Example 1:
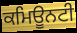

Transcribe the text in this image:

ਕਮਿਊਨਟੀ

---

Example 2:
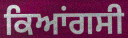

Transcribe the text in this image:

ਕਿਆਂਗਸੀ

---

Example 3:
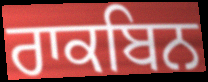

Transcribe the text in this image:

ਰਾਕਬਿਨ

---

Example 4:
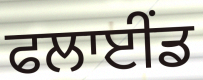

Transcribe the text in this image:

ਫਲਾਈਂਡ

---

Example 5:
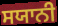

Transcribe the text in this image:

ਸਯਾਨੀ